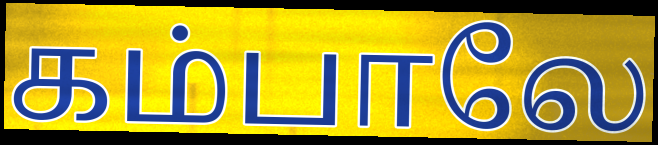
கம்பாலே